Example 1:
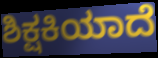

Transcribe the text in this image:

ಶಿಕ್ಷಕಿಯಾದೆ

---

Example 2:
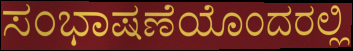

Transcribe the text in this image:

ಸಂಭಾಷಣೆಯೊಂದರಲ್ಲಿ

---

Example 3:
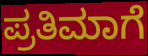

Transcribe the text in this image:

ಪ್ರತಿಮಾಗೆ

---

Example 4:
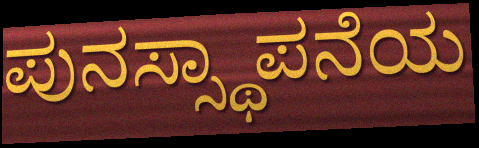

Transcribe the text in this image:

ಪುನಸ್ಸ್ಥಾಪನೆಯ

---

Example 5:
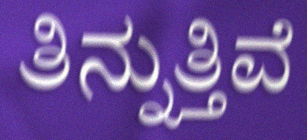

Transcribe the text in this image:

ತಿನ್ನುತ್ತಿವೆ